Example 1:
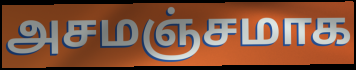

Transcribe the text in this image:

அசமஞ்சமாக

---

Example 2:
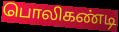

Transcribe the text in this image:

பொலிகண்டி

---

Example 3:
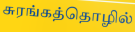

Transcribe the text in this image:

சுரங்கத்தொழில்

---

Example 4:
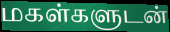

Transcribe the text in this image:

மகள்களுடன்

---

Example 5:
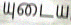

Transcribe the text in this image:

யுடைய